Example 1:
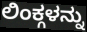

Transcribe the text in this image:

ಲಿಂಕ್ಗಳನ್ನು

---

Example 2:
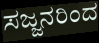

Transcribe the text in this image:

ಸಜ್ಜನರಿಂದ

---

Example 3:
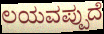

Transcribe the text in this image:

ಲಯವಪ್ಪುದೆ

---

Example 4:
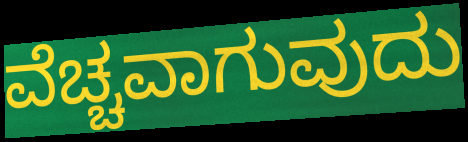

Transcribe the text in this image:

ವೆಚ್ಚವಾಗುವುದು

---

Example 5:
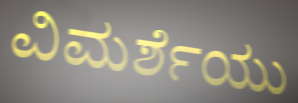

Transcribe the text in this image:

ವಿಮರ್ಶೆಯು